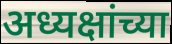
अध्यक्षांच्या